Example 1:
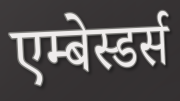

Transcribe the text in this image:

एम्बेस्डर्स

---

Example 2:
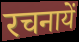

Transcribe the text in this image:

रचनायें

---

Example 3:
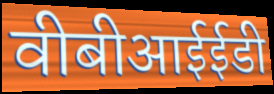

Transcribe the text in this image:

वीबीआईईडी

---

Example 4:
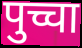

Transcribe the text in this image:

पुच्चा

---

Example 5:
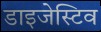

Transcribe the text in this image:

डाइजेस्टिव